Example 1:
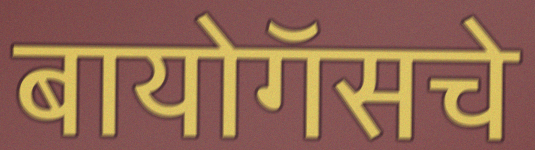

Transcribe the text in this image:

बायोगॅसचे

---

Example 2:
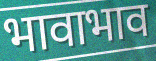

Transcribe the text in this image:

भावाभाव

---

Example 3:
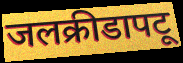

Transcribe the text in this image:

जलक्रीडापटू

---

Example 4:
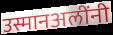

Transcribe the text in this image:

उस्मानअलींनी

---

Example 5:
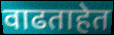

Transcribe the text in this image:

वाढताहेत